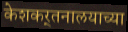
केशकर्तनालयाच्या